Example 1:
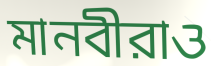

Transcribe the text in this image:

মানবীরাও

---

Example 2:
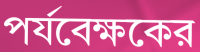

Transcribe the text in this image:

পর্যবেক্ষকের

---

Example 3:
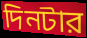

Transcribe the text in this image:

দিনটার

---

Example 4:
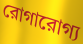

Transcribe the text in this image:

রোগারোগ্য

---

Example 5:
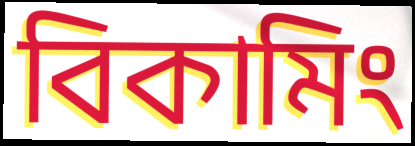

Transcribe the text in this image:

বিকামিং